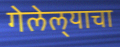
गेलेल्याचा